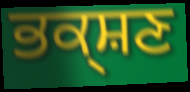
ਭਕ੍ਸ਼ਣ